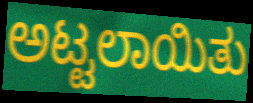
ಅಟ್ಟಲಾಯಿತು